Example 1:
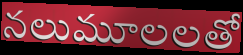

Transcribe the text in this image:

నలుమూలలతో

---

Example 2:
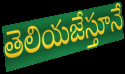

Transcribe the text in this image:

తెలియజేస్తూనే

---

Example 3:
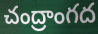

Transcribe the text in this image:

చంద్రాంగద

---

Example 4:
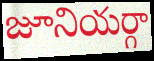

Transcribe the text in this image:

జూనియర్గా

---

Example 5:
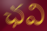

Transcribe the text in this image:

ఛవి